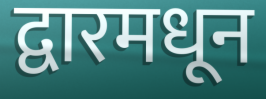
द्वारमधून